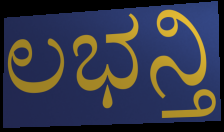
ಲಭನ್ತಿ